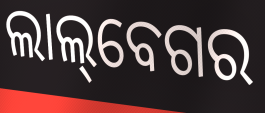
ଲାଲ୍‌ବେଗର